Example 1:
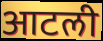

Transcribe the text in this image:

आटली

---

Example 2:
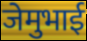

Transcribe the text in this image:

जेमुभाई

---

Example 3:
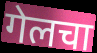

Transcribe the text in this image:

गेलचा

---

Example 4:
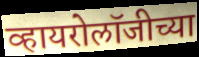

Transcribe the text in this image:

व्हायरोलॉजीच्या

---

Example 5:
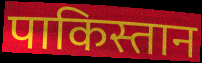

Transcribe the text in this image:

पाकिस्तान